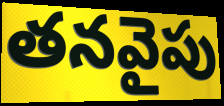
తనవైపు